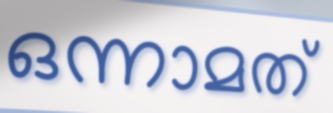
ഒന്നാമത്